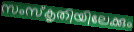
സംസ്കൃതിയിലേക്കും